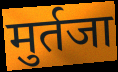
मुर्तजा